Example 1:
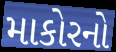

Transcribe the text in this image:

માકોરનો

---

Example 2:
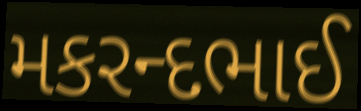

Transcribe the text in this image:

મકરન્દભાઈ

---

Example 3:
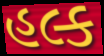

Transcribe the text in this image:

હલ્ક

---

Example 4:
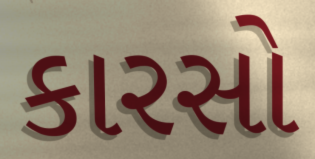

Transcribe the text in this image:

કારસો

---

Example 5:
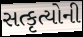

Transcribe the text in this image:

સત્કૃત્યોની